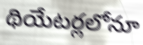
థియేటర్లలోనూ